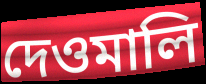
দেওমালি